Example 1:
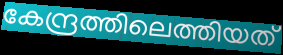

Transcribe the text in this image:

കേന്ദ്രത്തിലെത്തിയത്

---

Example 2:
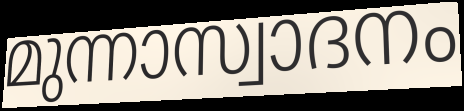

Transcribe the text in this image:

മുന്നാസ്വാദനം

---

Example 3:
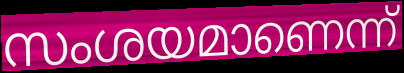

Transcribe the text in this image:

സംശയമാണെന്ന്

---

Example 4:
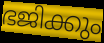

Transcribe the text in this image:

ഭജിക്കും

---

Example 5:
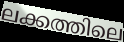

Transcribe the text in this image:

ലക്കത്തിലെ